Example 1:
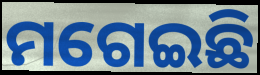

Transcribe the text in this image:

ମଗେଇଛି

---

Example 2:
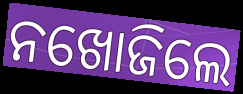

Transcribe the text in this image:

ନଖୋଜିଲେ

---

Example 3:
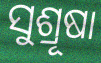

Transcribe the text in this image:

ସୁଶ୍ରୂଷା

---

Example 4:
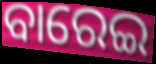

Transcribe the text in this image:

ବାରେଇ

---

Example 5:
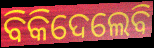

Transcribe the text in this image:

ବିକିଦେଲେବି